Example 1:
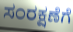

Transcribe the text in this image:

ಸಂರಕ್ಷಣೆಗೆ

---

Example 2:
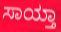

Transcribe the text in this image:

ಸಾಯ್ತಾ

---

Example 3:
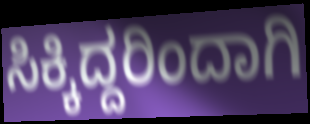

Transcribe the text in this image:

ಸಿಕ್ಕಿದ್ದರಿಂದಾಗಿ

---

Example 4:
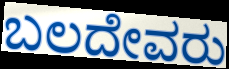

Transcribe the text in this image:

ಬಲದೇವರು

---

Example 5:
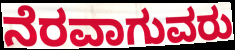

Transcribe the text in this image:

ನೆರವಾಗುವರು